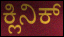
ಕ್ಲಿನಿಕ್